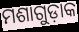
ମଶାଗୁଡ଼ାକ